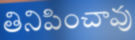
తినిపించావు